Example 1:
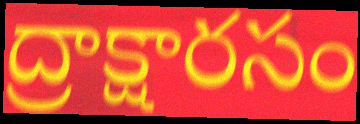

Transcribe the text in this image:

ద్రాక్షారసం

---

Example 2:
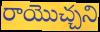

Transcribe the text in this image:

రాయొచ్చని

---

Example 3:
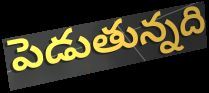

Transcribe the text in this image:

పెడుతున్నది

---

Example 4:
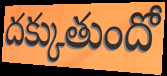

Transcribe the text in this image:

దక్కుతుందో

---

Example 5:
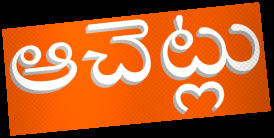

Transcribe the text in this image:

ఆచెట్లు